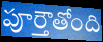
పూర్తౌతోంది